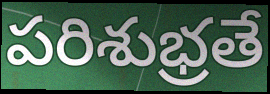
పరిశుభ్రతే